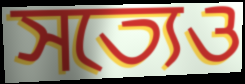
সত্যেও